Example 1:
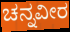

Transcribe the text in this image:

ಚನ್ನವೀರ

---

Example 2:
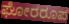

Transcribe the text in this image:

ಘೋರರೂಪ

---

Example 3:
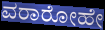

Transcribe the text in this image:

ವರಾರೋಹೇ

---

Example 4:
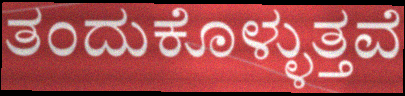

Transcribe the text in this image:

ತಂದುಕೊಳ್ಳುತ್ತವೆ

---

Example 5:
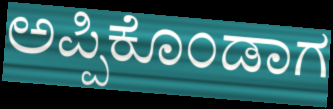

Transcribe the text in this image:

ಅಪ್ಪಿಕೊಂಡಾಗ